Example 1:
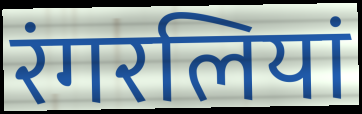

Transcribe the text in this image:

रंगरलियां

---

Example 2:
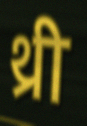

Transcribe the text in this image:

थ्री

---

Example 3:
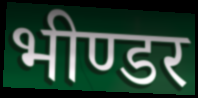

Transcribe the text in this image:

भीण्डर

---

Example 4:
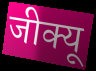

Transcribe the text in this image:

जीक्यू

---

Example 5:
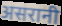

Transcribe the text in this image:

असरानी